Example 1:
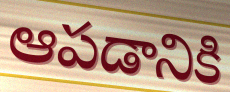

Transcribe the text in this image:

ఆపడానికి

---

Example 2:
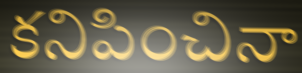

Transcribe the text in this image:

కనిపించినా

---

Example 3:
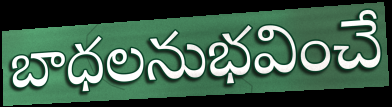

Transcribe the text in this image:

బాధలనుభవించే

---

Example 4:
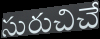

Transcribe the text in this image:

సురుచిచే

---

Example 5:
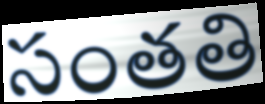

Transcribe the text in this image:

సంతతి